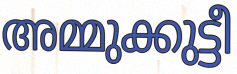
അമ്മുക്കുട്ടീ